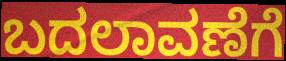
ಬದಲಾವಣೆಗೆ